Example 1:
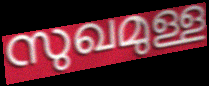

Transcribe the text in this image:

സുഖമുള്ള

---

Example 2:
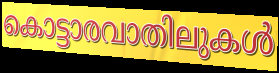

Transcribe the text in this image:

കൊട്ടാരവാതിലുകൾ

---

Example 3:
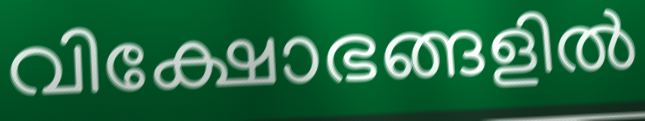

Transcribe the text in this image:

വിക്ഷോഭങ്ങളിൽ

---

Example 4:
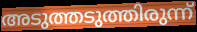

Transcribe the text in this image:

അടുത്തടുത്തിരുന്ന്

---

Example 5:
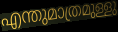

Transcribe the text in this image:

എന്തുമാത്രമുള്ളു